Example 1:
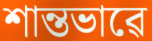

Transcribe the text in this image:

শান্তভাৱে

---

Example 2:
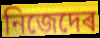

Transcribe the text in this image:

নিজেদেৰ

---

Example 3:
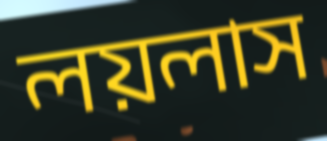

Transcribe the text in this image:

লয়লাস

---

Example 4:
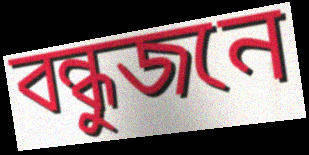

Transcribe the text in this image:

বন্ধুজনে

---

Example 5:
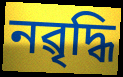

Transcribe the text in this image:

নৱৃদ্ধি